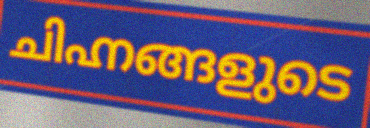
ചിഹ്നങ്ങളുടെ